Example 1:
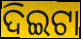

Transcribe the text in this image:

ଦିଇଟା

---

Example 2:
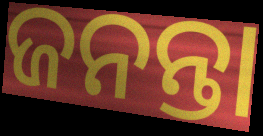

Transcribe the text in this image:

ଜନନ୍ତା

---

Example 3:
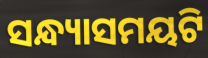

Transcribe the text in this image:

ସନ୍ଧ୍ୟାସମୟଟି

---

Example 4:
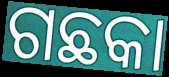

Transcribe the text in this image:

ଗଛକା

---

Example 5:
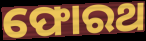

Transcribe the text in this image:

ଫୋରଥ